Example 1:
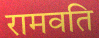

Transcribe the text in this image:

रामवति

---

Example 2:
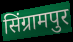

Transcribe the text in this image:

सिंग्रामपुर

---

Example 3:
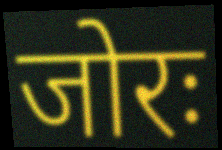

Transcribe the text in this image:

जोरः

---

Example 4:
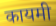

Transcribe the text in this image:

कायमी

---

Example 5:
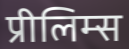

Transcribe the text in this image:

प्रीलिम्स